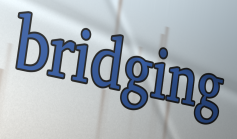
bridging